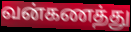
வன்கணத்து